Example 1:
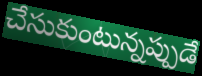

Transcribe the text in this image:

చేసుకుంటున్నప్పుడే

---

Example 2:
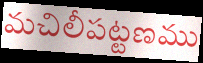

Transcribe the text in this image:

మచిలీపట్టణము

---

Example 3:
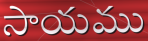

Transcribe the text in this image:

సాయము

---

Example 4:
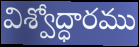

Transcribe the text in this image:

విశ్వోద్ధారము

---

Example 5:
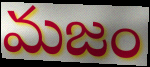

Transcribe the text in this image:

మజం